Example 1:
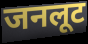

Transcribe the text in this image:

जनलूट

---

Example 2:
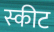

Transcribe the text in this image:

स्‍कीट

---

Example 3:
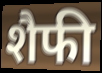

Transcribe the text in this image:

शैफी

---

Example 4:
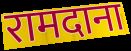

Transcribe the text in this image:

रामदाना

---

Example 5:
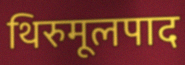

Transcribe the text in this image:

थिरुमूलपाद